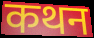
कथन